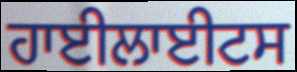
ਹਾਈਲਾਈਟਸ